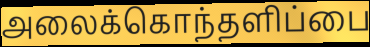
அலைக்கொந்தளிப்பை